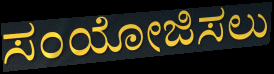
ಸಂಯೋಜಿಸಲು